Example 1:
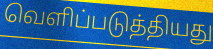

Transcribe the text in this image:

வெளிப்படுத்தியது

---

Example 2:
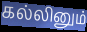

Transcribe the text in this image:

கல்லினும்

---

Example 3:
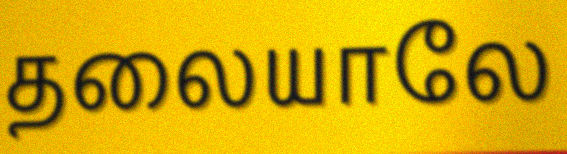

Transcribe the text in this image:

தலையாலே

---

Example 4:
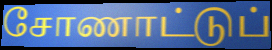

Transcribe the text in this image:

சோணாட்டுப்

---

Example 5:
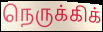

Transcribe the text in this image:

நெருக்கிக்